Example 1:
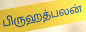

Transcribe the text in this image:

பிருஹத்பலன்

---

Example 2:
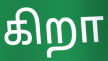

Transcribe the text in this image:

கிறா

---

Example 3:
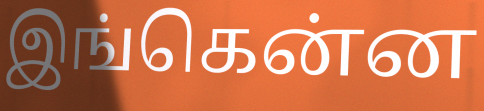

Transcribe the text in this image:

இங்கென்ன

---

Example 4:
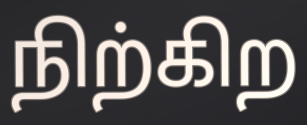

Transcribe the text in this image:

நிற்கிற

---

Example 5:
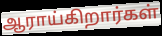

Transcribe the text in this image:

ஆராய்கிறார்கள்